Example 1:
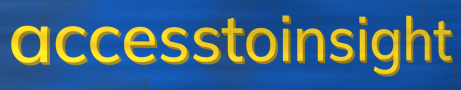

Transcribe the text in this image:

accesstoinsight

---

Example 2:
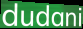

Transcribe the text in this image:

dudani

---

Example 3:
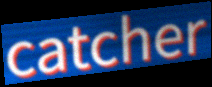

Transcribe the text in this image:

catcher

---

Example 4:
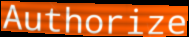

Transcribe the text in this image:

Authorize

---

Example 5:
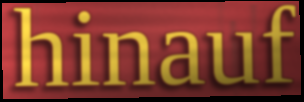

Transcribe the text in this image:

hinauf